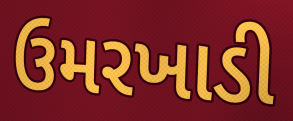
ઉમરખાડી